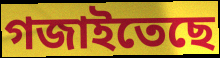
গজাইতেছে